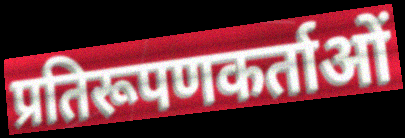
प्रतिरूपणकर्ताओं